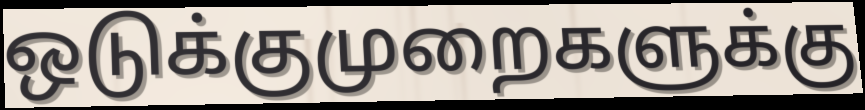
ஒடுக்குமுறைகளுக்கு